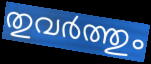
തുവർത്തും